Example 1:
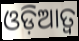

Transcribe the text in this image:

ଓଡ଼ିଆତ୍ୱ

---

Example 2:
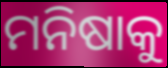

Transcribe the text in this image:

ମନିଷାକୁ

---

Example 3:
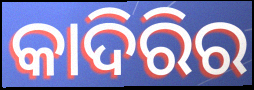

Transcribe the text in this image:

କାଦିରିର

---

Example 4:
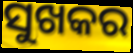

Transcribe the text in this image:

ସୁଖକର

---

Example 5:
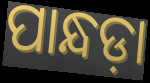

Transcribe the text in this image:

ପାନ୍ଧଡ଼ା